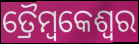
ତ୍ରୈମ୍ବକେଶ୍ୱର